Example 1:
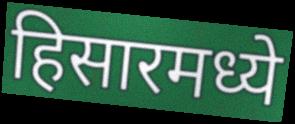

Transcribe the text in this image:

हिसारमध्ये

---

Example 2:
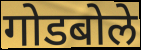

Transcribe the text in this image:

गोडबोले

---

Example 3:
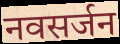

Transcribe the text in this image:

नवसर्जन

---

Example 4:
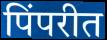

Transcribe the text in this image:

पिंपरीत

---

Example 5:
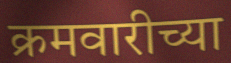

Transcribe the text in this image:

क्रमवारीच्या